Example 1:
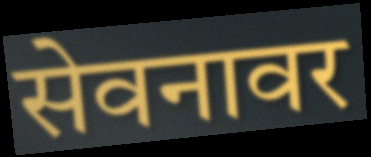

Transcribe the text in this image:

सेवनावर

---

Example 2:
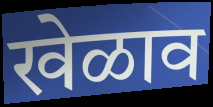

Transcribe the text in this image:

खेळाव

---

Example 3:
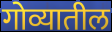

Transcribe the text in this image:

गोव्यातील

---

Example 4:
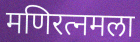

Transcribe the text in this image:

मणिरत्नमला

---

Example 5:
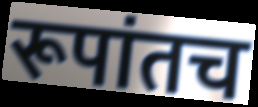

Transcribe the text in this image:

रूपांतच